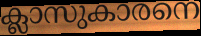
ക്ലാസുകാരനെ